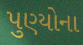
પુણ્યોના